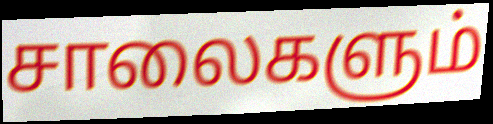
சாலைகளும்